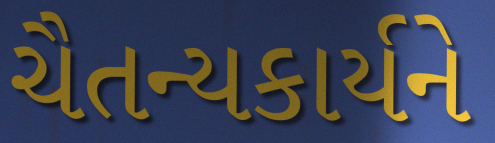
ચૈતન્યકાર્યને